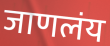
जाणलंय